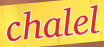
chalel